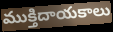
ముక్తిదాయకాలు